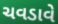
ચવડાવે